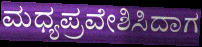
ಮಧ್ಯಪ್ರವೇಶಿಸಿದಾಗ